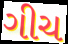
ગીચ